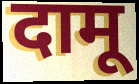
दामू